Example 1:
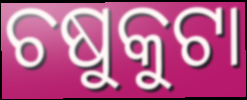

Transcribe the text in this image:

ଚଷୁକୁଟା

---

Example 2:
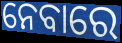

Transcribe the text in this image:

ନେବାରେ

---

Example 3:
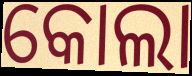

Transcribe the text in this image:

କୋଲା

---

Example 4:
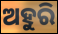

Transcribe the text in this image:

ଅହୁରି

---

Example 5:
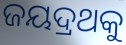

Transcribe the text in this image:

ଜୟଦ୍ରଥକୁ